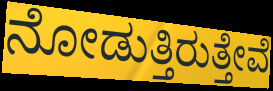
ನೋಡುತ್ತಿರುತ್ತೇವೆ